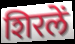
शिरलें